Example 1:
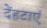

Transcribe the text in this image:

देंहटाएं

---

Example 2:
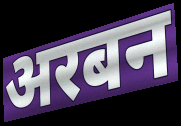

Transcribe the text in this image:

अरबन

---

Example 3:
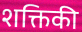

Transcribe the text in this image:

शक्तिकी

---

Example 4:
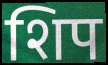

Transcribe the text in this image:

शिप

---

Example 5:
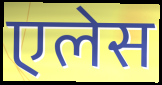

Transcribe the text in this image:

एलेस